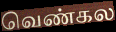
வெண்கல